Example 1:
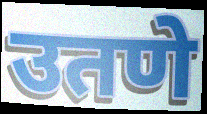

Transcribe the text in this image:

उतणे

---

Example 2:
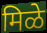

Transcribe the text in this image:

मिळे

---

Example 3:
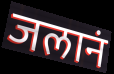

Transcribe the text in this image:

जलानं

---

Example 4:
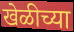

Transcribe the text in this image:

खेळीच्या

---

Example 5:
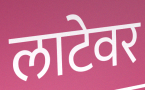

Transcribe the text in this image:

लाटेवर